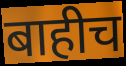
बाहीच